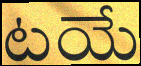
టయే